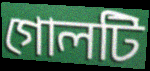
গোলটি